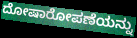
ದೋಷಾರೋಪಣೆಯನ್ನು